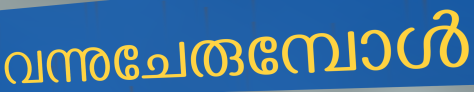
വന്നുചേരുമ്പോൾ